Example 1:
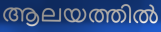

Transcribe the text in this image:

ആലയത്തിൽ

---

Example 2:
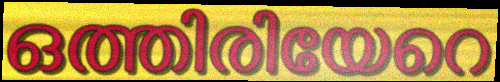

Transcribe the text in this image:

ഒത്തിരിയേറെ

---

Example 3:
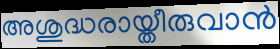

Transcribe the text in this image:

അശുദ്ധരായ്തീരുവാൻ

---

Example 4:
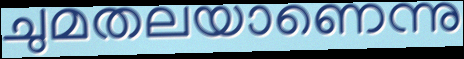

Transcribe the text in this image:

ചുമതലയാണെന്നു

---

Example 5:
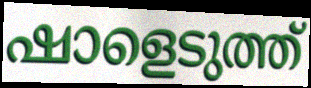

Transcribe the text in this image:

ഷാളെടുത്ത്